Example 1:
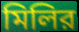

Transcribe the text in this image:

মিলির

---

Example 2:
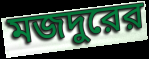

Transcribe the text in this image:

মজদুরের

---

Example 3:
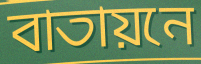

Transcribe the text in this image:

বাতায়নে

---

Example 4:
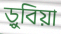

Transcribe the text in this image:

ড়ুবিয়া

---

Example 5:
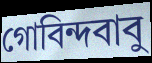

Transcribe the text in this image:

গোবিন্দবাবু